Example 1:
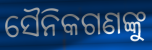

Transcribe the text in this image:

ସୈନିକଗଣଙ୍କୁ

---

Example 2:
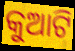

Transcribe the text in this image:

କୁଆଟି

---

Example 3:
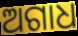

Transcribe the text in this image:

ଅଗାଧ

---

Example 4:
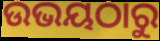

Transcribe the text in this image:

ଉଭୟଠାରୁ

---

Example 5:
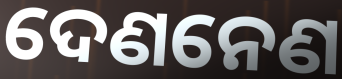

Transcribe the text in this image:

ଦେଣନେଣ